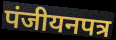
पंजीयनपत्र